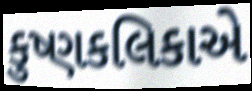
કુષ્ણકલિકાએ